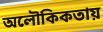
অলৌকিকতায়